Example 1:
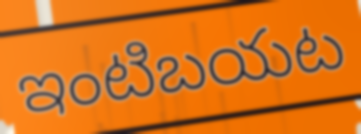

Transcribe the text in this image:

ఇంటిబయట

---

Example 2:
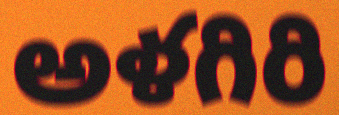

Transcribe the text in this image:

అళగిరి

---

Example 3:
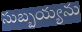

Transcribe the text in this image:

సుబ్బయ్యను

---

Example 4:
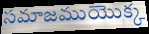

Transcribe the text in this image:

సమాజముయొక్క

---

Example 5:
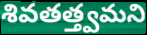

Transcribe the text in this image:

శివతత్త్వమని